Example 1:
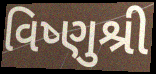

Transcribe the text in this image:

વિષ્ણુશ્રી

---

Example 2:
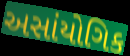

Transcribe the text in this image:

અસાંયોગિક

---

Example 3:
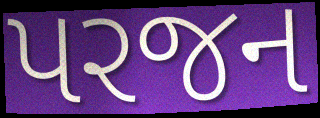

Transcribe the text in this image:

પરજન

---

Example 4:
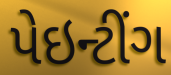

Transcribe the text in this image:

પેઇન્ટીંગ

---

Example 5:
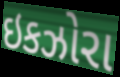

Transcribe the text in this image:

ઇકઝોરા